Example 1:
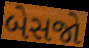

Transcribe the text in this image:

બેસજો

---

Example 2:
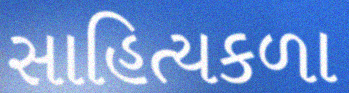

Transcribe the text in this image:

સાહિત્યકળા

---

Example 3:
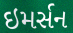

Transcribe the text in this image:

ઇમર્સન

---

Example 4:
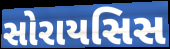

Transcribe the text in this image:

સોરાયસિસ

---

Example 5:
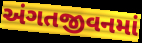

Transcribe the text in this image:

અંગતજીવનમાં